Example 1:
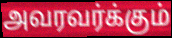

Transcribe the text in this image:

அவரவர்க்கும்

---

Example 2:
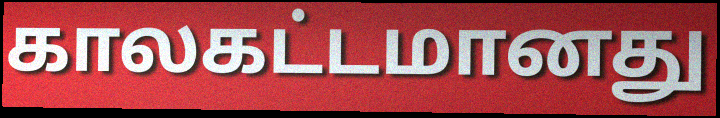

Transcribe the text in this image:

காலகட்டமானது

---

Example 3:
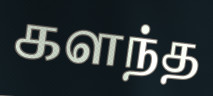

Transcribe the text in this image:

களந்த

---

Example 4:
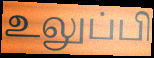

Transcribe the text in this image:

உலுப்பி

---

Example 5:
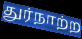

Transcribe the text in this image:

துர்நாற்ற